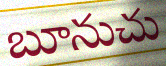
బూనుచు